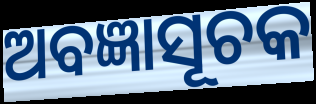
ଅବଜ୍ଞାସୂଚକ